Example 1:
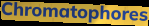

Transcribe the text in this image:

Chromatophores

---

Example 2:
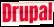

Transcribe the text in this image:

Drupal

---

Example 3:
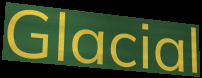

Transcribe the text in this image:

Glacial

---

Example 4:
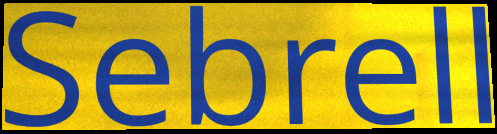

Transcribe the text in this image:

Sebrell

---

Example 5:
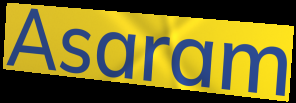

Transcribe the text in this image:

Asaram